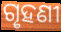
ଗୃହଣୀ